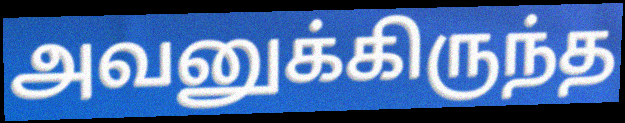
அவனுக்கிருந்த